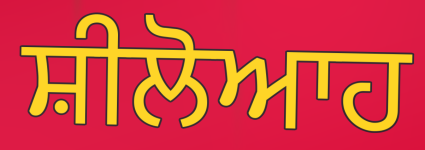
ਸ਼ੀਲੋਆਹ